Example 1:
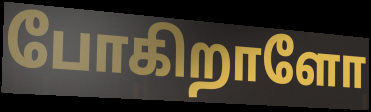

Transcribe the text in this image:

போகிறாளோ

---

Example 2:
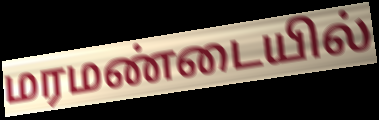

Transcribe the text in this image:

மரமண்டையில்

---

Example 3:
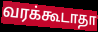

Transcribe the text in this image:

வரக்கூடாதா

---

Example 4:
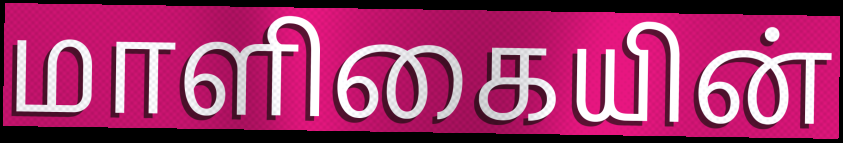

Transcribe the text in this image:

மாளிகையின்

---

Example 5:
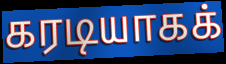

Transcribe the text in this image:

கரடியாகக்